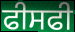
ਫੀਸਫੀ